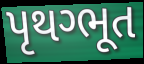
પૃથગ્ભૂત